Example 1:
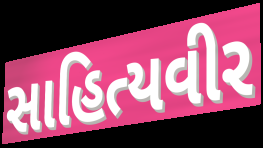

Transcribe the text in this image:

સાહિત્યવીર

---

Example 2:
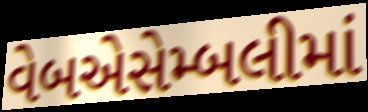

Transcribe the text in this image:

વેબએસેમ્બલીમાં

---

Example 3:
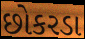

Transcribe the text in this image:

છોકરડા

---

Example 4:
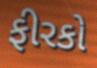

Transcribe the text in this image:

ફીરકો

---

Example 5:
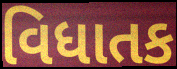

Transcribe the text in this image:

વિધાતક